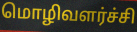
மொழிவளர்ச்சி